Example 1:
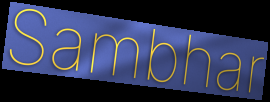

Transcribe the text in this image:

Sambhar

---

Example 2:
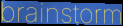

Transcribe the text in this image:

brainstorm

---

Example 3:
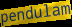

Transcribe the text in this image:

pendulam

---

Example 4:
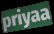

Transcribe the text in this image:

priyaa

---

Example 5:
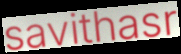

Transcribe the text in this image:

savithasr